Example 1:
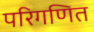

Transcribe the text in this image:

परिगणित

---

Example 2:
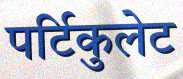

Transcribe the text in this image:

पर्टिकुलेट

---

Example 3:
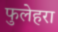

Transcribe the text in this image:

फुलेहरा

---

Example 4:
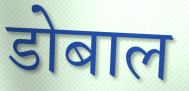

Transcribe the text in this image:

डोबाल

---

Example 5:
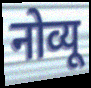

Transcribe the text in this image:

नोव्यू